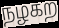
நழகற